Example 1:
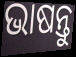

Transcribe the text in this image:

ଭାଷନ୍ତୁ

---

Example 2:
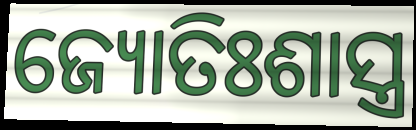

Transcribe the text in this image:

ଜ୍ୟୋତିଃଶାସ୍ତ୍ର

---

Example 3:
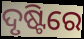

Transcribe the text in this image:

ଦୃଷ୍ଟିରେ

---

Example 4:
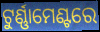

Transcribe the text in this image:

ଟୁର୍ଣ୍ଣାମେଣ୍ଟରେ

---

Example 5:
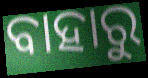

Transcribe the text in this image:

ବାହାରୁ